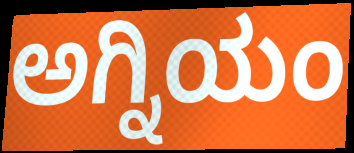
ಅಗ್ನಿಯಂ